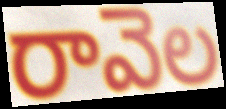
రావెల